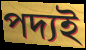
পদ্যই